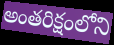
అంతరిక్షంలోని